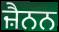
ਜ਼ੈਨਨ